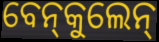
ବେନ୍‍କୁଲେନ୍